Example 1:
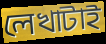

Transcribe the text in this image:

লেখাটাই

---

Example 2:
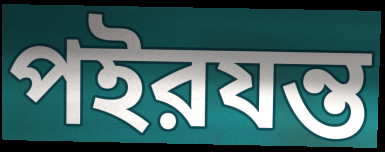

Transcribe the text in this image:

পইরযন্ত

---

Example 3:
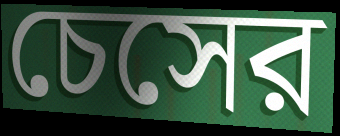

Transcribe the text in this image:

চেসের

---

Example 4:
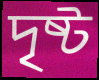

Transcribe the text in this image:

দৃষ্ট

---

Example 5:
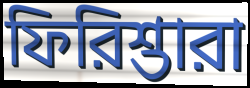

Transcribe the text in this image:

ফিরিশ্তারা